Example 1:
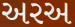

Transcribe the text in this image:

અરઅ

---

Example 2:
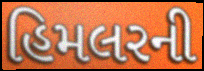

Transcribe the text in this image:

હિમલરની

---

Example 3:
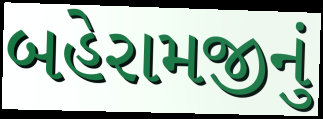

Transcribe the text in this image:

બહેરામજીનું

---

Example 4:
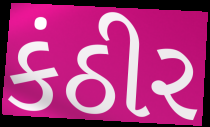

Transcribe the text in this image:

કંઠીર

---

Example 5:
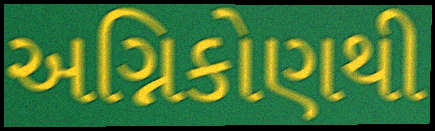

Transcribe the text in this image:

અગ્નિકોણથી